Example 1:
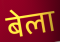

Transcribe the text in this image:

बेला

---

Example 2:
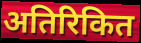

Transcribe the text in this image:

अतिरिकित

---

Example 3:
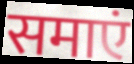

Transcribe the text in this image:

समाएं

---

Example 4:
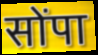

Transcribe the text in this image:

सोंपा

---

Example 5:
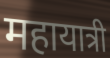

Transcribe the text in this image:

महायात्री